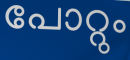
പോറ്റും